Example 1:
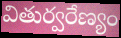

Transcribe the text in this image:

వితుర్వరేణ్యం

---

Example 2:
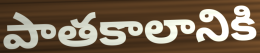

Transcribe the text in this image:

పాతకాలానికి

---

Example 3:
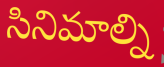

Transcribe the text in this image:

సినిమాల్ని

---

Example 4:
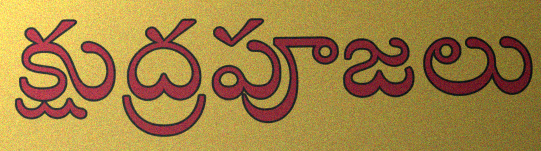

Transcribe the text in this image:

క్షుద్రపూజలు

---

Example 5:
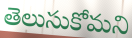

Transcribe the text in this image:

తెలుసుకోమని